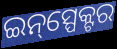
ଇନ୍‌ସ୍ପେକ୍ଟର